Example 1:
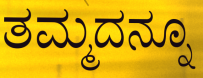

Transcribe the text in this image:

ತಮ್ಮದನ್ನೂ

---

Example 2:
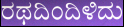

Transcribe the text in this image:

ರಥದಿಂದಿಳಿದು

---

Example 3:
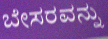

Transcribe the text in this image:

ಬೇಸರವನ್ನು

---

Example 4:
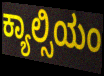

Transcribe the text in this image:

ಕ್ಯಾಲ್ಸಿಯಂ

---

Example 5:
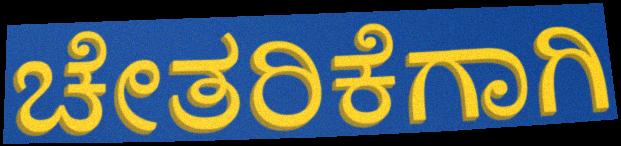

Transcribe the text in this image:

ಚೇತರಿಕೆಗಾಗಿ